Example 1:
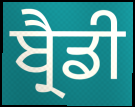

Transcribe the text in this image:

ਬ੍ਰੈਡੀ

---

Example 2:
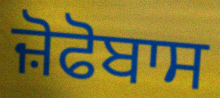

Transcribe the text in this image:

ਜ਼ੋਫੋਬਾਸ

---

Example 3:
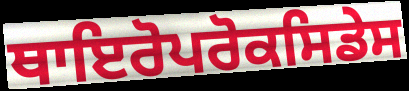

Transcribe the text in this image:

ਥਾਇਰੋਪਰੋਕਸਿਡੇਸ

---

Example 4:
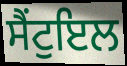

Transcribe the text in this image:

ਸੈਂਟੁਇਲ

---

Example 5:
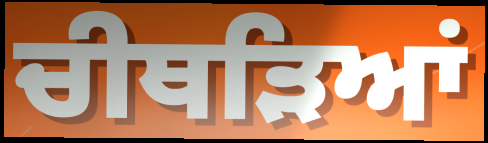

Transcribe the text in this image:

ਚੀਥੜਿਆਂ